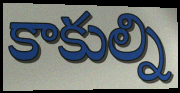
కాకుల్ని